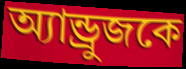
অ্যান্ড্রুজকে